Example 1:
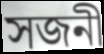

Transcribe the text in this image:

সজনী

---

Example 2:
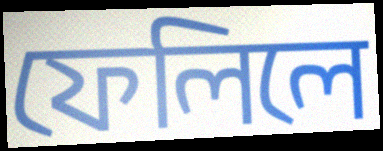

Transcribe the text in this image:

ফেলিলে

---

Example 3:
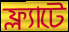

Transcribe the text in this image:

ফ্ল্যাটে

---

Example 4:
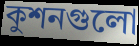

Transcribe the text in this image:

কুশনগুলো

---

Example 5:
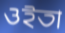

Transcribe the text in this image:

ওইতা